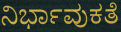
ನಿರ್ಭಾವುಕತೆ